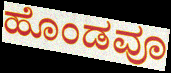
ಹೊಂಡವೂ